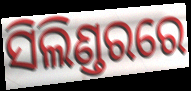
ସିଲିଣ୍ଡରରେ